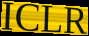
ICLR